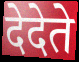
देदेते